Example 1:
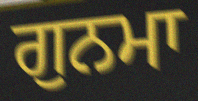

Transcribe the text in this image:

ਗੁਨਮਾ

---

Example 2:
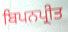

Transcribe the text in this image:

ਬਿਪਨਪ੍ਰੀਤ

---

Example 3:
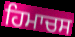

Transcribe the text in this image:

ਹਿਮਾਚਸ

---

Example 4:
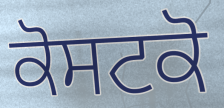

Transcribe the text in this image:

ਕੋਸਟਕੋ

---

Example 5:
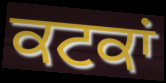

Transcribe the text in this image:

ਕਟਕਾਂ